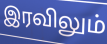
இரவிலும்